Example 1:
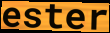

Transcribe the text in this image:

ester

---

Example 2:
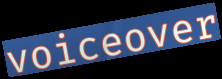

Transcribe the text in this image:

voiceover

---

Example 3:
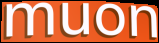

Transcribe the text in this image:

muon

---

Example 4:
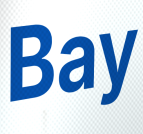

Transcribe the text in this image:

Bay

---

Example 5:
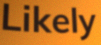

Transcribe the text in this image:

Likely